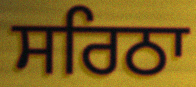
ਸਰਿਠਾ